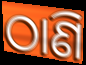
ଠାଣି